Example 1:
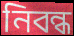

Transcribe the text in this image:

নিবন্ধ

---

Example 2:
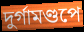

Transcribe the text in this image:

দুর্গামণ্ডপে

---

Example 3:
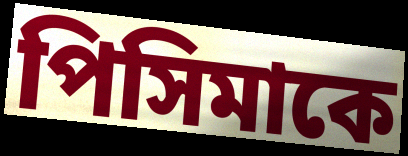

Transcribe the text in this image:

পিসিমাকে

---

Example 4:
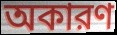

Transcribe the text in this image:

অকারণ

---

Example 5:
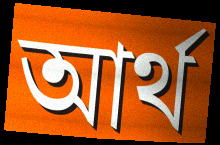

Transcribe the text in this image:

আর্থ